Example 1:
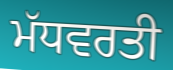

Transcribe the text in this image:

ਮੱਧਵਰਤੀ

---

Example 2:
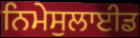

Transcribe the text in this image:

ਨਿਮੇਸੁਲਾਈਡ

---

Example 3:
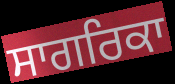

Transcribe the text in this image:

ਸਾਗਰਿਕਾ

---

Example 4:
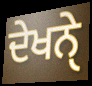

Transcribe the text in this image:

ਦੇਖਨੑੇ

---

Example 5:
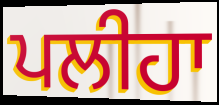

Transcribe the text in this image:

ਪਲੀਹਾ